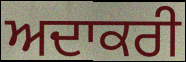
ਅਦਾਕਰੀ